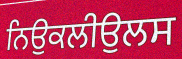
ਨਿਉਕਲੀਉਲਸ